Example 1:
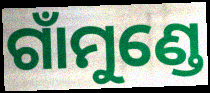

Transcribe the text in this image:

ଗାଁମୁଣ୍ଡେ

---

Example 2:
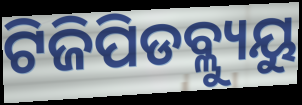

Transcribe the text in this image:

ଟିଜିପିଡବ୍ଲ୍ୟୁୟୁ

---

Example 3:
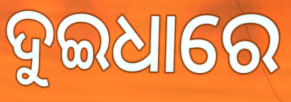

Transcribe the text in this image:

ଦୁଇଧାରେ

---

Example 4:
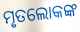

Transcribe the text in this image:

ମୃତଲୋକଙ୍କ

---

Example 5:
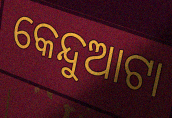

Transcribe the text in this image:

କେନ୍ଦୁଆଟା